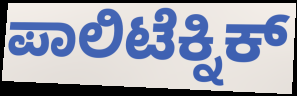
ಪಾಲಿಟೆಕ್ನಿಕ್